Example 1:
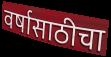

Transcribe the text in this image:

वर्षासाठीचा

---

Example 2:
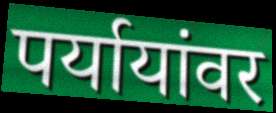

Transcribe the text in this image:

पर्यायांवर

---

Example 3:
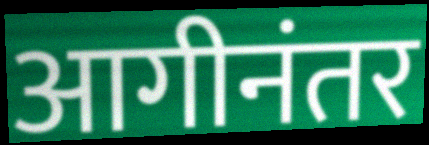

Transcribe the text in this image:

आगीनंतर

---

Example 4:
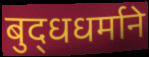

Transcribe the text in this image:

बुद्धधर्माने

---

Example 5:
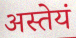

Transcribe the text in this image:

अस्तेयं